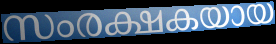
സംരക്ഷകയായ